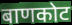
बाणकोट